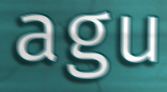
agu